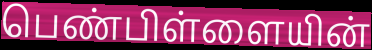
பெண்பிள்ளையின்